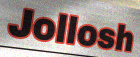
Jollosh